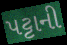
પટ્ટાની